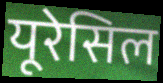
यूरेसिल